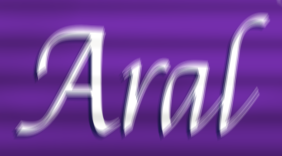
Aral